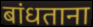
बांधताना